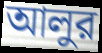
আলুর